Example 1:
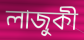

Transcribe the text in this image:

লাজুকী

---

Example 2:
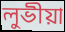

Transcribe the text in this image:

লুভীয়া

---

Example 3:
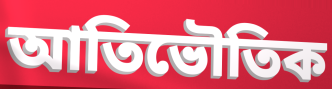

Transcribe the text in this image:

আতিভৌতিক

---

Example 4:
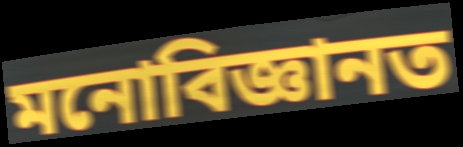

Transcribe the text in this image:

মনোবিজ্ঞানত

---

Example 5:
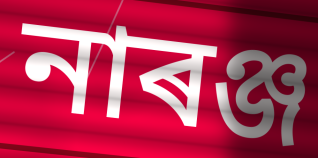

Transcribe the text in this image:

নাৰঞ্জ